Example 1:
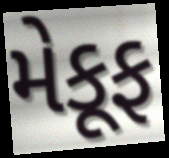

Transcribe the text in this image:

મેકૂફ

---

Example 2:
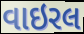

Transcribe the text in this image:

વાઇરલ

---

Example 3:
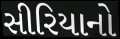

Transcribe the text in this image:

સીરિયાનો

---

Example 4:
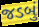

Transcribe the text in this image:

જડબું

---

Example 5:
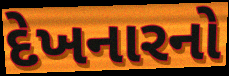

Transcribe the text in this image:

દેખનારનો